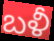
బళీ